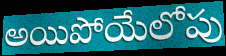
అయిపోయేలోపు